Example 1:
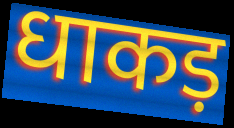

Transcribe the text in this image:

धाकड़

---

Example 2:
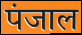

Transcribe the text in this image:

पंजाल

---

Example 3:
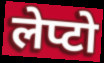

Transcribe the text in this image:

लेप्टो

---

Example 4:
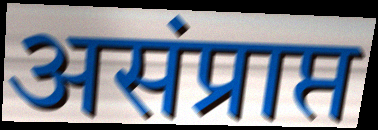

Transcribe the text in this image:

असंप्राप्त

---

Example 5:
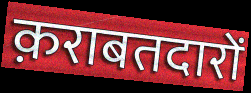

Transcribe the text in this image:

क़राबतदारों